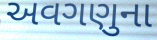
અવગણુના